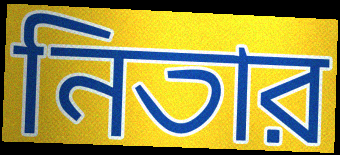
নিতার